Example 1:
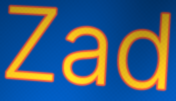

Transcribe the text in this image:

Zad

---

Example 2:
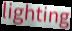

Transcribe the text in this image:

lighting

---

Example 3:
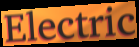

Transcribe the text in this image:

Electric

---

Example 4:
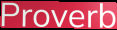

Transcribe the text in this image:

Proverb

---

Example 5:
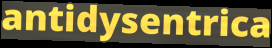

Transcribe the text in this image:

antidysentrica